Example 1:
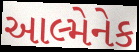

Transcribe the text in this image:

આલ્મેનેક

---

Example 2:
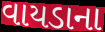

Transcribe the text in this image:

વાયડાના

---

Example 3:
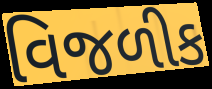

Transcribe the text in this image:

વિજળીક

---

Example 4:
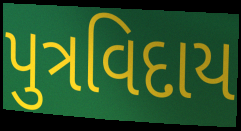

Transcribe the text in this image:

પુત્રવિદાય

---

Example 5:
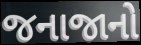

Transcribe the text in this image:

જનાજાનો